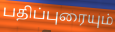
பதிப்புரையும்